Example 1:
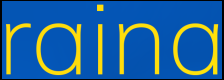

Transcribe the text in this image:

raina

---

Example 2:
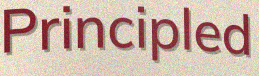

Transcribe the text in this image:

Principled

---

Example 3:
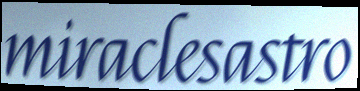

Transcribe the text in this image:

miraclesastro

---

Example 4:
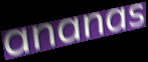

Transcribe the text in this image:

ananas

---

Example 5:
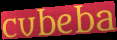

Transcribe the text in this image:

cubeba